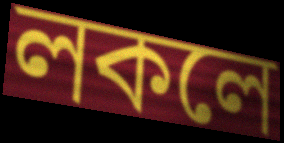
লকলে